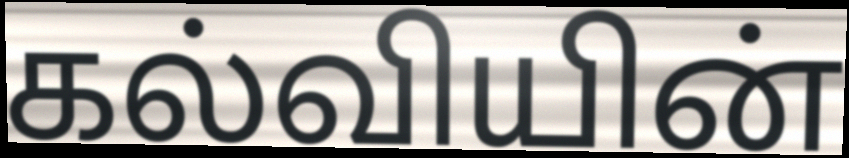
கல்வியின்